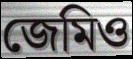
জেমিও